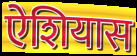
ऐशियास